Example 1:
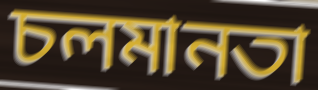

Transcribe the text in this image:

চলমানতা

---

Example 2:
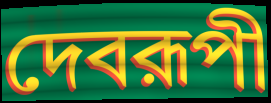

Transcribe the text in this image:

দেবরূপী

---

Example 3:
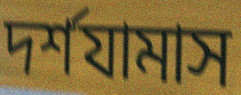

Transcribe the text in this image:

দর্শযামাস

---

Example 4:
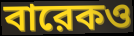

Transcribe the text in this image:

বারেকও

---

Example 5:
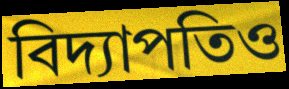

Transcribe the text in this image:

বিদ্যাপতিও